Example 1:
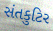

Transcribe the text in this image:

સંતકુટિર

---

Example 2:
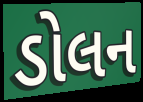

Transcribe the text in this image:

ડોલન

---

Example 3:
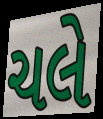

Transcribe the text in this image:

ચલે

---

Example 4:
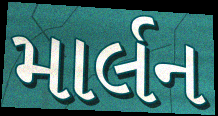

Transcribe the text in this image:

માર્લન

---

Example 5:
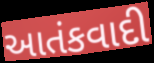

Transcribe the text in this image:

આતંકવાદી